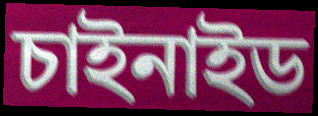
চাইনাইড